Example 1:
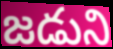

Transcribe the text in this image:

జడుని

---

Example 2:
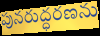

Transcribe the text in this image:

పునరుద్ధరణను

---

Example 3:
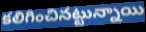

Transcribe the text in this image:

కలిగించినట్టున్నాయి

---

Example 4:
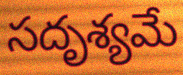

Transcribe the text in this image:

సదృశ్యమే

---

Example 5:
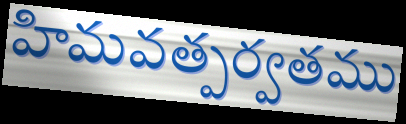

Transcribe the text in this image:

హిమవత్పర్వతము